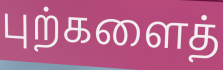
புற்களைத்